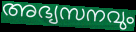
അഭ്യസനവും